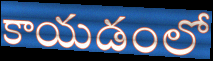
కాయడంలో